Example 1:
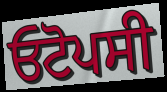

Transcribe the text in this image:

ਓਟੋਪਸੀ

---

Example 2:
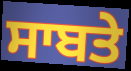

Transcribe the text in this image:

ਸਾਬਤੇ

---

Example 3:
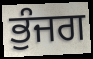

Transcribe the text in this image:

ਭੁੰਜਗ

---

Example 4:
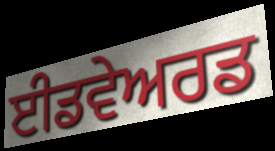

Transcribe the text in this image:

ਈਡਵੇਅਰਡ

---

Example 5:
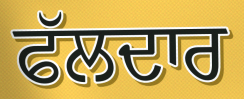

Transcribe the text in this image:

ਫੱਲਦਾਰ